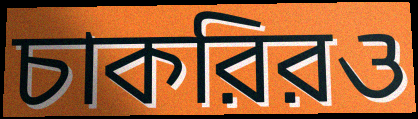
চাকরিরও